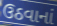
ઉઠવાનાં